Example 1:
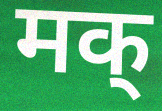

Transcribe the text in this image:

मक्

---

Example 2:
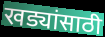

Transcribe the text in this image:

खड्यांसाठी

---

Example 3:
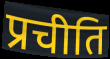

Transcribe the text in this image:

प्रचीति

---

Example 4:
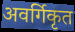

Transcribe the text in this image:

अवर्गिकृत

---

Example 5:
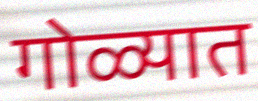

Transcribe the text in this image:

गोळ्यात